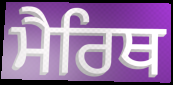
ਮੈਰਿਥ